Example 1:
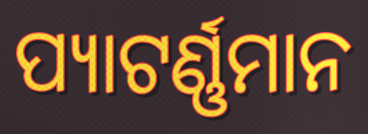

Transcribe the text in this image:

ପ୍ୟାଟର୍ଣ୍ଣମାନ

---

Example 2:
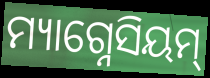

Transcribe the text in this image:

ମ୍ୟାଗ୍ନେସିୟମ୍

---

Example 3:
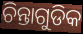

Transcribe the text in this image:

ଚିନ୍ତାଗୁଡିକ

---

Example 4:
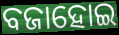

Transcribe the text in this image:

ବଜାହୋଇ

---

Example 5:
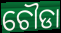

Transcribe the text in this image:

ଚୌଡା